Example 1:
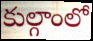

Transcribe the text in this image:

కుల్గాంలో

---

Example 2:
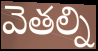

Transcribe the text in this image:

వెతల్ని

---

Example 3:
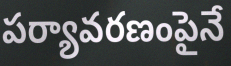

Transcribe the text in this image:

పర్యావరణంపైనే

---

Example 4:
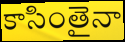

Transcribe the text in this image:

కాసింతైనా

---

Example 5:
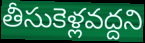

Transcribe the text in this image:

తీసుకెళ్లవద్దని